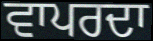
ਵਾਪਰਦਾ